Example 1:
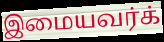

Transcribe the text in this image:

இமையவர்க்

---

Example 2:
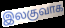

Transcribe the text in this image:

இலகுவாக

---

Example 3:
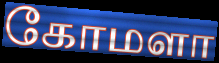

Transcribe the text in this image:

கோமளா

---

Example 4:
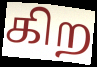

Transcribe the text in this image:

கிற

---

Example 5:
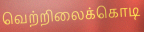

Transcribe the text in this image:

வெற்றிலைக்கொடி